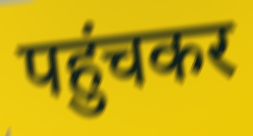
पहुंचकर